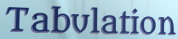
Tabulation